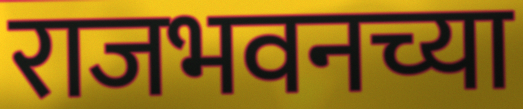
राजभवनच्या